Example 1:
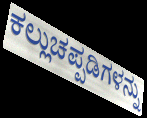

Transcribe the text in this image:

ಕಲ್ಲುಚಪ್ಪಡಿಗಳನ್ನು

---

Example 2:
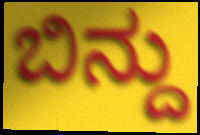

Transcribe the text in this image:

ಬಿನ್ದು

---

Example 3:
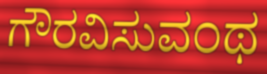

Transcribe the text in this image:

ಗೌರವಿಸುವಂಥ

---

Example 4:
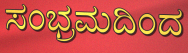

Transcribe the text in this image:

ಸಂಭ್ರಮದಿಂದ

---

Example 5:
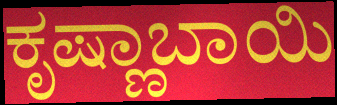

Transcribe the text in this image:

ಕೃಷ್ಣಾಬಾಯಿ